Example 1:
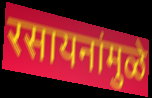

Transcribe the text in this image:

रसायनांमुळे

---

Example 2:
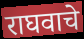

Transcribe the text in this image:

राघवाचे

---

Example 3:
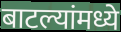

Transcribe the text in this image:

बाटल्यांमध्ये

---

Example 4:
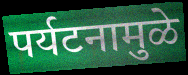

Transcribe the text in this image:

पर्यटनामुळे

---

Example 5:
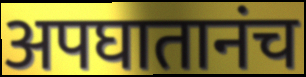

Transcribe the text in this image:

अपघातानंच